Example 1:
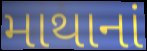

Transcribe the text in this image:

માથાનાં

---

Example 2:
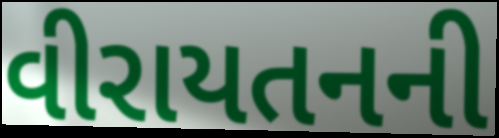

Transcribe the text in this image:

વીરાયતનની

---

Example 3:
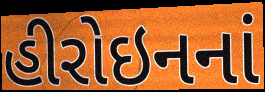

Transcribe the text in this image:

હીરોઇનનાં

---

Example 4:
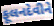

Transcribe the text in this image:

ફૂલનદેવીને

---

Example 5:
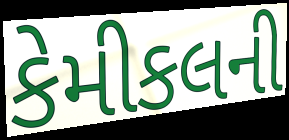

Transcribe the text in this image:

કેમીકલની